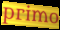
primo